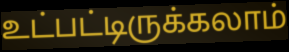
உட்பட்டிருக்கலாம்